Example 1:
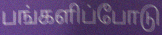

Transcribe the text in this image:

பங்களிப்போடு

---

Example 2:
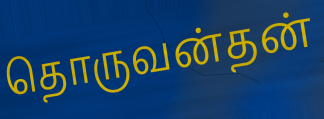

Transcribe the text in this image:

தொருவன்தன்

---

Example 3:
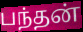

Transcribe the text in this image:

பந்தன்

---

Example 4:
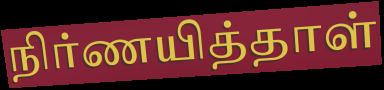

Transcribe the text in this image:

நிர்ணயித்தாள்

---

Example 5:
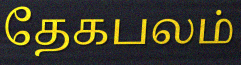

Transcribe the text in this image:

தேகபலம்